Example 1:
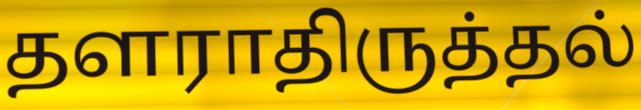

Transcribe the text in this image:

தளராதிருத்தல்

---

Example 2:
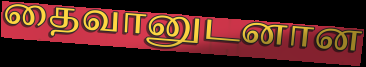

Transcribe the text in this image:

தைவானுடனான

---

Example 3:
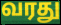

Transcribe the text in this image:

வரது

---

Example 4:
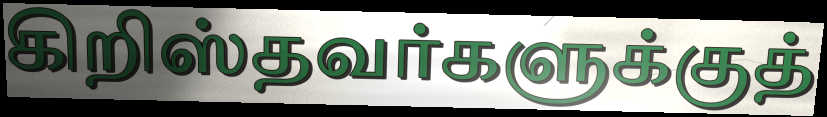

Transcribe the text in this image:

கிறிஸ்தவர்களுக்குத்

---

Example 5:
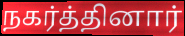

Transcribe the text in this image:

நகர்த்தினார்